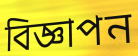
বিজ্ঞাপন